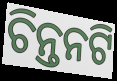
ଚିନ୍ତନଟି